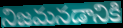
నిజమనడానికి